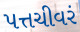
પત્તચીવરં